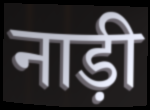
नाड़ी